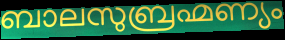
ബാലസുബ്രഹ്മണ്യം